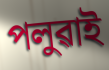
পলুৱাই